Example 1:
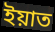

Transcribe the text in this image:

ইয়াত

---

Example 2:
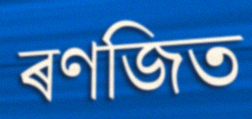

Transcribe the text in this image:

ৰণজিত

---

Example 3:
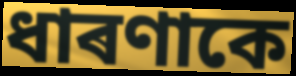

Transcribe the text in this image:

ধাৰণাকে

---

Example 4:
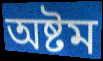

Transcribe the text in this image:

অষ্টম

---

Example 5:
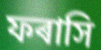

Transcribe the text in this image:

ফৰাসি